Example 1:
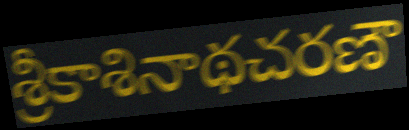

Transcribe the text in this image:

శ్రీకాశినాథచరణౌ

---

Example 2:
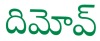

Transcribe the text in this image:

దిమోవ్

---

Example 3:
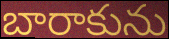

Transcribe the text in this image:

బారాకును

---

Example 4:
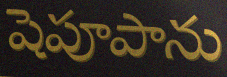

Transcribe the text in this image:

షెపూపాను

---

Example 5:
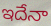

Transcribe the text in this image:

ఇదేనా